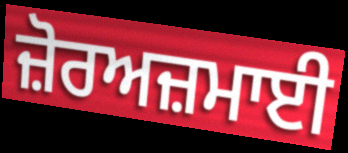
ਜ਼ੋਰਅਜ਼ਮਾਈ